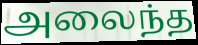
அலைந்த